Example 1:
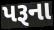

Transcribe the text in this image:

પરૂના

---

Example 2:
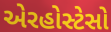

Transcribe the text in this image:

એરહોસ્ટેસો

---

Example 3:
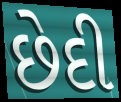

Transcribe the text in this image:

છેદી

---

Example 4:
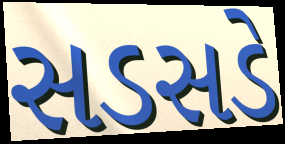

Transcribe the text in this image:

સડસડે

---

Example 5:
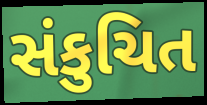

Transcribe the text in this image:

સંકુચિત